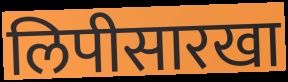
लिपीसारखा